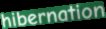
hibernation